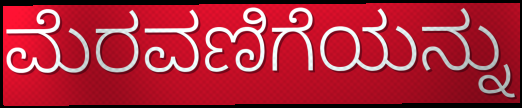
ಮೆರವಣಿಗೆಯನ್ನು